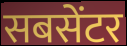
सबसेंटर